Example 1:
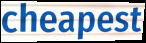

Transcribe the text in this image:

cheapest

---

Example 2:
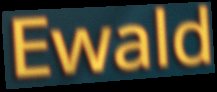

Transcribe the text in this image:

Ewald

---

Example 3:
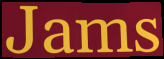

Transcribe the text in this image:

Jams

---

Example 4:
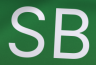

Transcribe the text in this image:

SB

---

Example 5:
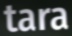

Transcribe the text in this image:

tara